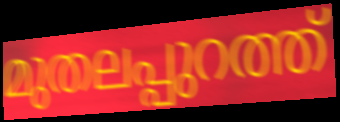
മുതലപ്പുറത്ത്